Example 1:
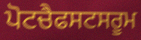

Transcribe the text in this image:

ਪੋਟਚੈਫਸਟਸਰੂਮ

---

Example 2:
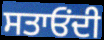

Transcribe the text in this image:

ਸਤਾਓਂਦੀ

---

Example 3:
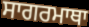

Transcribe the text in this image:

ਸਾਗਰਮਾਥਾ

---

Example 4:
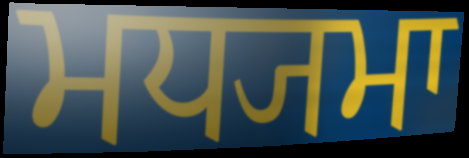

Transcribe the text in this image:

ਮਧ੍ਯਮਾ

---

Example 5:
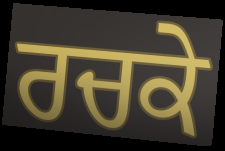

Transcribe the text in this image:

ਰਚਕੇ